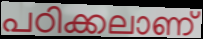
പഠിക്കലാണ്